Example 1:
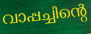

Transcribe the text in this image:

വാപ്പച്ചിന്റെ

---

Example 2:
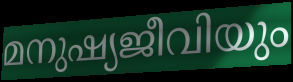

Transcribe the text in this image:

മനുഷ്യജീവിയും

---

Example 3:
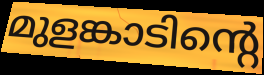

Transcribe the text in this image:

മുളങ്കാടിന്റെ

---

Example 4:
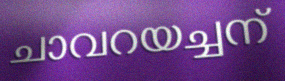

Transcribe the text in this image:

ചാവറയച്ചന്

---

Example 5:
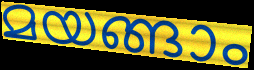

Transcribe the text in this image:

മയങ്ങാം